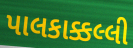
પાલકાક્કલ્લી